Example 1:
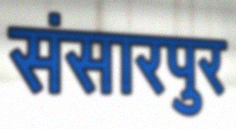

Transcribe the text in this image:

संसारपुर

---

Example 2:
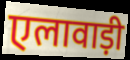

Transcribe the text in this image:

एलावाड़ी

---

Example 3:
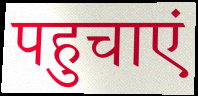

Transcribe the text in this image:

पहुचाएं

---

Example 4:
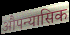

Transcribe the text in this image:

औपन्यासिक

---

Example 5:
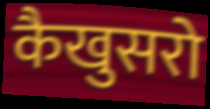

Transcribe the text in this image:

कैखुसरो